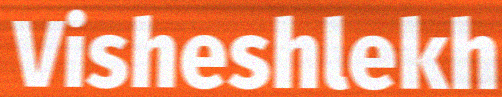
Visheshlekh